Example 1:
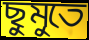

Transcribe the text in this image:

ছুমুতে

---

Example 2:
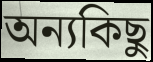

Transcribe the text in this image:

অন্যকিছু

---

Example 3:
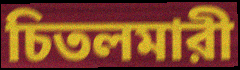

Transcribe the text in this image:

চিতলমারী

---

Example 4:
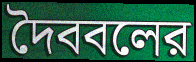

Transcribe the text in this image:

দৈববলের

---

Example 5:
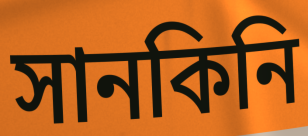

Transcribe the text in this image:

সানকিনি